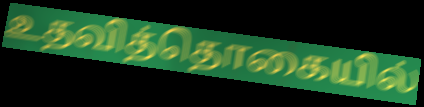
உதவித்தொகையில்